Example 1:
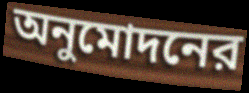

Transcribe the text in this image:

অনুমোদনের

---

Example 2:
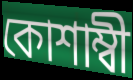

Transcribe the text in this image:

কোশাম্বী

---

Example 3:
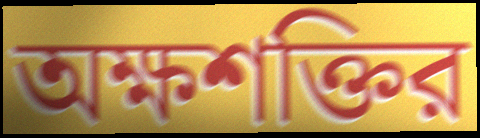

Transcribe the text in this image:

অক্ষশক্তির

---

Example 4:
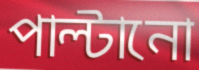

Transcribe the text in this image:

পাল্টানো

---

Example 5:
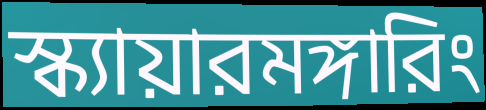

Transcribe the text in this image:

স্ক্যায়ারমঙ্গারিং